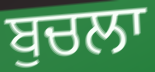
ਬੁਚਲਾ